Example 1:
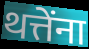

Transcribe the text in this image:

थत्तेंना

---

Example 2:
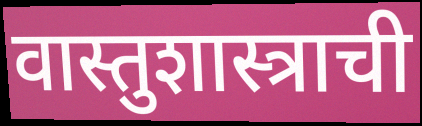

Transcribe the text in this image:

वास्तुशास्त्राची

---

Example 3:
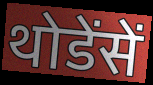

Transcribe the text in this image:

थोडेंसें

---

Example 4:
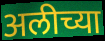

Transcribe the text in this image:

अलीच्या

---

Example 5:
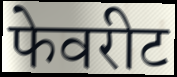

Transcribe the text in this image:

फेवरीट